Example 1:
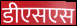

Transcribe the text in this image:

डीएसएस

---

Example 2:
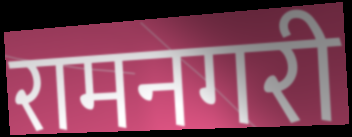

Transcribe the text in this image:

रामनगरी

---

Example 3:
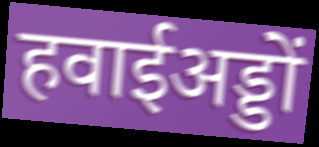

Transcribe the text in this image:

हवाईअड्डों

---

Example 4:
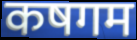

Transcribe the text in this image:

कषगम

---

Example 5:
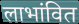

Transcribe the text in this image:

लाभांवित